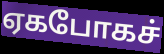
ஏகபோகச்